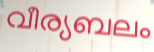
വീര്യബലം